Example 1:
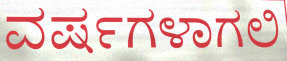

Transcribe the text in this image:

ವರ್ಷಗಳಾಗಲಿ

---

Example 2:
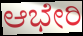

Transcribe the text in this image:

ಆಭೇರಿ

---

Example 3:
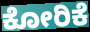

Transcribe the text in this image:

ಕೋರಿಕೆ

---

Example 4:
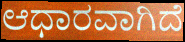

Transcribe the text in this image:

ಆಧಾರವಾಗಿದೆ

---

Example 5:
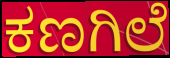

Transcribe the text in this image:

ಕಣಗಿಲೆ